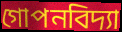
গোপনবিদ্যা